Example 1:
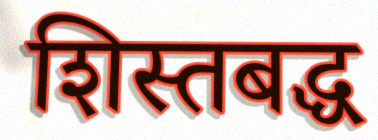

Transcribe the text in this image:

शिस्तबद्ध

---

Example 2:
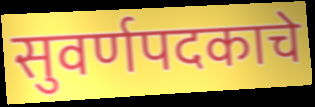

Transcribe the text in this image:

सुवर्णपदकाचे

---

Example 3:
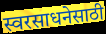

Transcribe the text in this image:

स्वरसाधनेसाठी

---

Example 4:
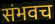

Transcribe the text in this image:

संभवच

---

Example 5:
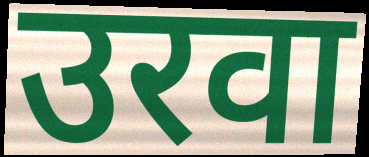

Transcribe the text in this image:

उरवा